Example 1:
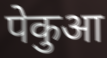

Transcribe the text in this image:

पेकुआ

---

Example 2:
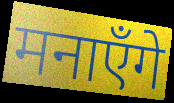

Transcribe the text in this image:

मनाएँगे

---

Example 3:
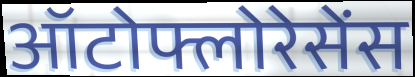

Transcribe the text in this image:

ऑटोफ्लोरेसेंस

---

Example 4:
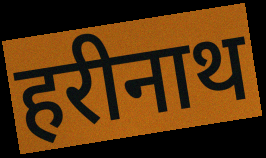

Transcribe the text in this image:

हरीनाथ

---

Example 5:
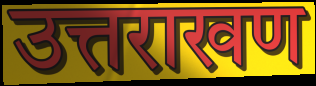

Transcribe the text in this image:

उत्तराखण